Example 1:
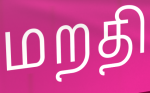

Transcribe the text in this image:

மறதி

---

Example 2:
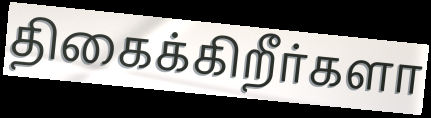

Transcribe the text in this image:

திகைக்கிறீர்களா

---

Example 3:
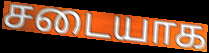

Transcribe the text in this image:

சடையாக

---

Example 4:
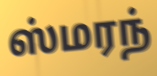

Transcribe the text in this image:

ஸ்மரந்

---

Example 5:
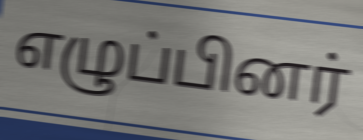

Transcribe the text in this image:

எழுப்பினர்